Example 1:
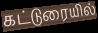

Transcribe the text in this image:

கட்டுரையில்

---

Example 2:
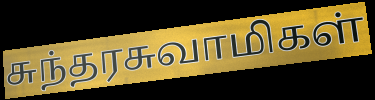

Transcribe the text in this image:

சுந்தரசுவாமிகள்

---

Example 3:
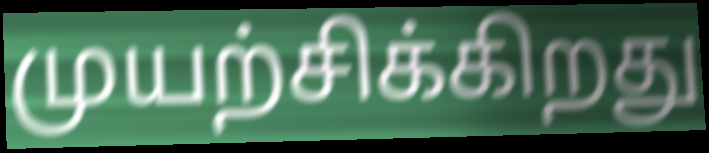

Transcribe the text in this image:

முயற்சிக்கிறது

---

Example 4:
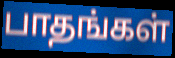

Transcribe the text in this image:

பாதங்கள்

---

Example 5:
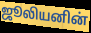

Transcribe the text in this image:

ஜூலியனின்